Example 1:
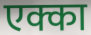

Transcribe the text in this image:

एक्का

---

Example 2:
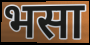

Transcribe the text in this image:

भसा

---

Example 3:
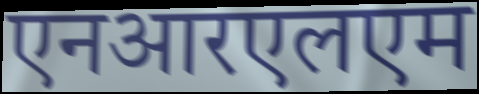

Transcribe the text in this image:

एनआरएलएम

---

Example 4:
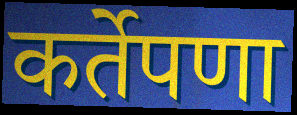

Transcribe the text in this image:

कर्तेपणा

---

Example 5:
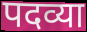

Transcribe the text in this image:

पदव्या